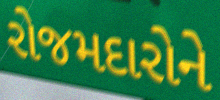
રોજમદારોને